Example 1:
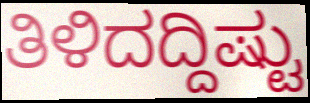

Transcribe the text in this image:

ತಿಳಿದದ್ದಿಷ್ಟು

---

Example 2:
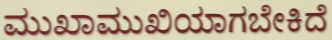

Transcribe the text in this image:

ಮುಖಾಮುಖಿಯಾಗಬೇಕಿದೆ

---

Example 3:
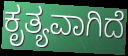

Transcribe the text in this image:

ಕೃತ್ಯವಾಗಿದೆ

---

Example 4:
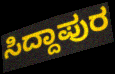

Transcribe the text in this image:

ಸಿದ್ದಾಪುರ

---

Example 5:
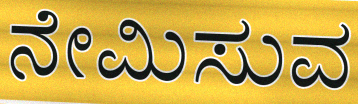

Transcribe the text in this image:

ನೇಮಿಸುವ